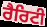
ਰੈਰਿਟੀ